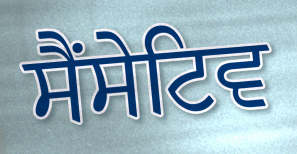
ਸੈਂਸੇਟਿਵ